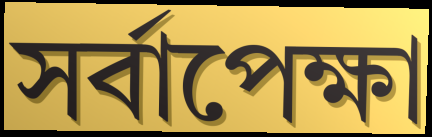
সৰ্বাপেক্ষা